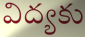
విద్యకు